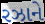
રઝાને